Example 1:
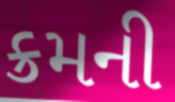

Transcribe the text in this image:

ક્રમની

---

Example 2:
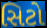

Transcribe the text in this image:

સિટો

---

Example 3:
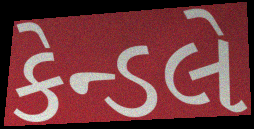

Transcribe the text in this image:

કેન્ડલે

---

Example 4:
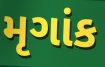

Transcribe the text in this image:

મૃગાંક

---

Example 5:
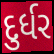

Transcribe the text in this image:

દુર્ધર